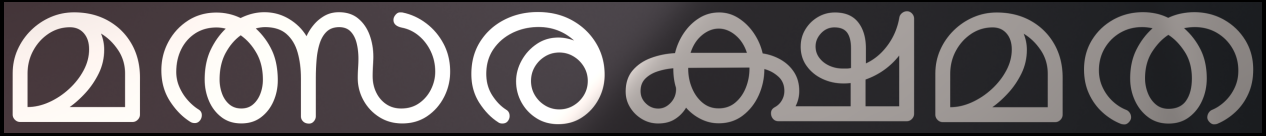
മത്സരക്ഷമത